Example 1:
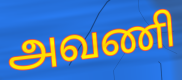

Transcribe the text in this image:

அவணி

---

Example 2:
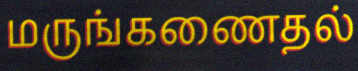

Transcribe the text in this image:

மருங்கணைதல்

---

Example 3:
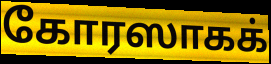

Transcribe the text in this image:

கோரஸாகக்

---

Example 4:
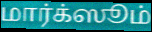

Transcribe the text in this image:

மார்க்ஸூம்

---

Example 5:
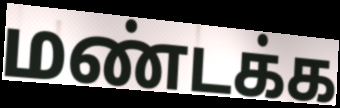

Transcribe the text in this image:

மண்டக்க